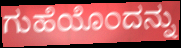
ಗುಹೆಯೊಂದನ್ನು